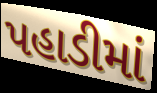
પહાડીમાં